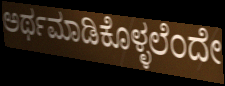
ಅರ್ಥಮಾಡಿಕೊಳ್ಳಲೆಂದೇ